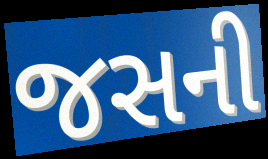
જસની